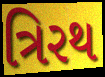
ત્રિરથ